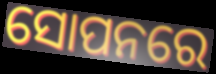
ସୋପନରେ